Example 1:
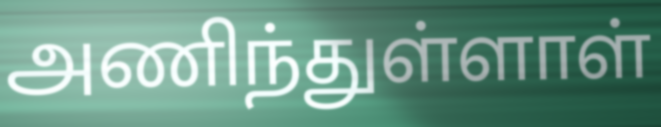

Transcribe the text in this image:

அணிந்துள்ளாள்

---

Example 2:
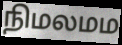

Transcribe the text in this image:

நிமலமம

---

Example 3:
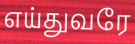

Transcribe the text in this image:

எய்துவரே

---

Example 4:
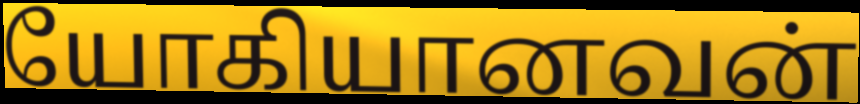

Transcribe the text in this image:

யோகியானவன்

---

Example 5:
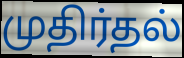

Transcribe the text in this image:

முதிர்தல்